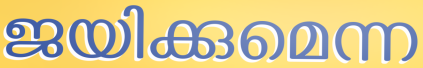
ജയിക്കുമെന്ന